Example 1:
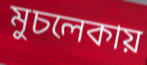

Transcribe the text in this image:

মুচলেকায়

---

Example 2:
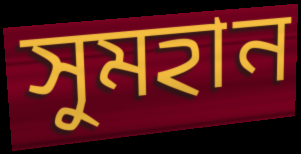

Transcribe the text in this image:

সুমহান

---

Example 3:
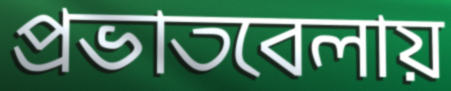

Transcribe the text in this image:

প্রভাতবেলায়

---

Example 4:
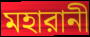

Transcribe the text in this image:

মহারানী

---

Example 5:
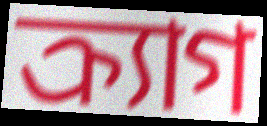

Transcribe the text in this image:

ক্র্যাগ